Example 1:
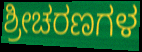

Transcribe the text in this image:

ಶ್ರೀಚರಣಗಳ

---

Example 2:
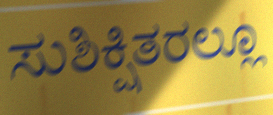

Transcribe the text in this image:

ಸುಶಿಕ್ಷಿತರಲ್ಲೂ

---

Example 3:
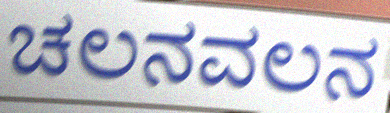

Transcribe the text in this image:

ಚಲನವಲನ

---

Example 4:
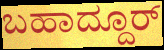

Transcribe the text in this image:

ಬಹಾದ್ದೂರ್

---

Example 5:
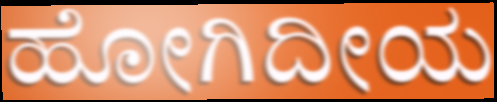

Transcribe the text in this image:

ಹೋಗಿದೀಯ